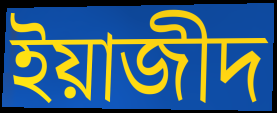
ইয়াজীদ